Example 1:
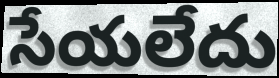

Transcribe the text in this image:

సేయలేదు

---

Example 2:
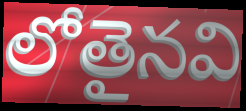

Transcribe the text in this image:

లోతైనవి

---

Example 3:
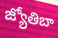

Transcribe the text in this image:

జ్యోతిబా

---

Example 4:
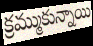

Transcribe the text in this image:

క్రమ్ముకున్నాయి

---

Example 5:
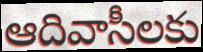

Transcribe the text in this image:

ఆదివాసీలకు